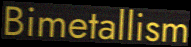
Bimetallism